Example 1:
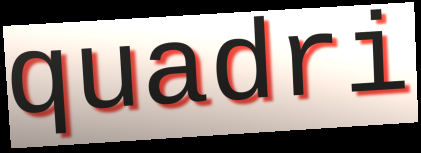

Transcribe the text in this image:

quadri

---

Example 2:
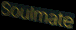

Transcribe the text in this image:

Soulmate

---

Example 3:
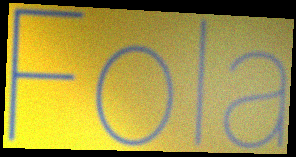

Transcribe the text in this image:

Fola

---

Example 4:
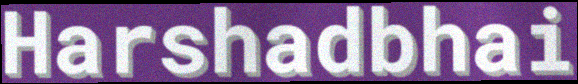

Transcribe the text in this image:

Harshadbhai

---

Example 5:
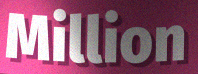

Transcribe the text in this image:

Million